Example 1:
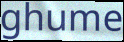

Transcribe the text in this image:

ghume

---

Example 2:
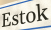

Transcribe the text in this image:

Estok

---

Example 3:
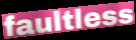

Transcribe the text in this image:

faultless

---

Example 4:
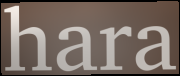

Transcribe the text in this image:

hara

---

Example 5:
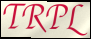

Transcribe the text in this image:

TRPL